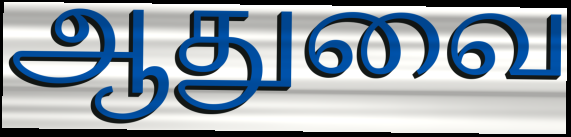
ஆதுவை